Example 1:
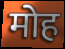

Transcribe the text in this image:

मोह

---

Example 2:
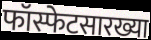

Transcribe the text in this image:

फॉस्फेटसारख्या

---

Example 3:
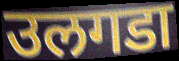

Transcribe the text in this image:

उलगडा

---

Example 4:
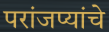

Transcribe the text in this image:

परांजप्यांचे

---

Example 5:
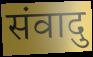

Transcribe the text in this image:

संवादु